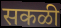
सकळी